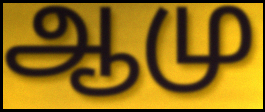
ஆமு